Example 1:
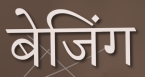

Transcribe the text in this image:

बेजिंग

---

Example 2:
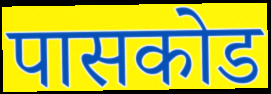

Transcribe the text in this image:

पासकोड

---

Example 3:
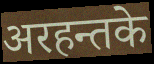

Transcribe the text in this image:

अरहन्तके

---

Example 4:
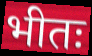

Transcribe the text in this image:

भीतः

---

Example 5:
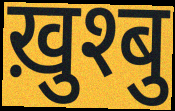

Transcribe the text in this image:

ख़ुश्बु